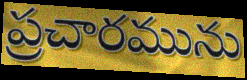
ప్రచారమును